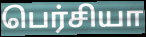
பெர்சியா